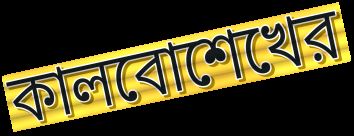
কালবোশেখের